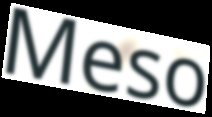
Meso